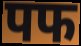
पफ